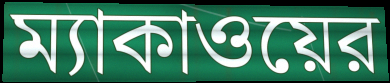
ম্যাকাওয়ের